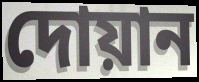
দোয়ান